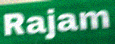
Rajam